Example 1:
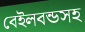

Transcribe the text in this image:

বেইলবন্ডসহ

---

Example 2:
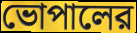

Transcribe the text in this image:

ভোপালের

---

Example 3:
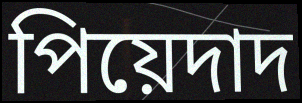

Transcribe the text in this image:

পিয়েদাদ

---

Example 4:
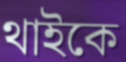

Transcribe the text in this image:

থাইকে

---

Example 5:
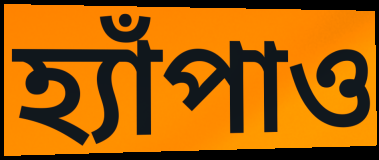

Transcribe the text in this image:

হ্যাঁপাও